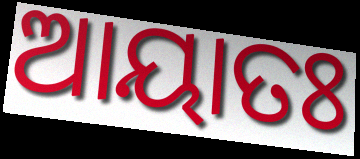
ଆୟାତଃ